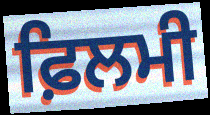
ਫ਼ਿਲਮੀ